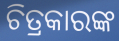
ଚିତ୍ରକାରଙ୍କ